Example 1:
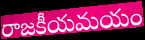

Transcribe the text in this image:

రాజకీయమయం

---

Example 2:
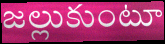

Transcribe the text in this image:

జల్లుకుంటూ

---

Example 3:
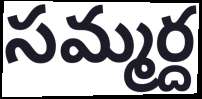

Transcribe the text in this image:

సమ్మర్ద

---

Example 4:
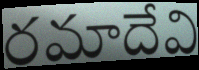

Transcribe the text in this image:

రమాదేవి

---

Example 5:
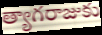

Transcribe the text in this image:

త్యాగరాజుకు